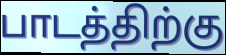
பாடத்திற்கு